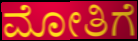
ಮೋತಿಗೆ